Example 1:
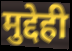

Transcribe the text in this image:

मुद्देही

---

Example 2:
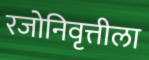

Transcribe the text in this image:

रजोनिवृत्तीला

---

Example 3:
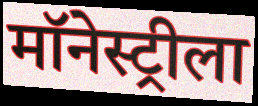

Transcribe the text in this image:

मॉनेस्ट्रीला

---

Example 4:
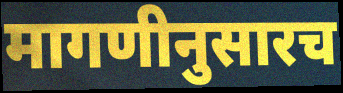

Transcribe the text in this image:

मागणीनुसारच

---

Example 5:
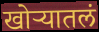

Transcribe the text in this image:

खोऱ्यातलं